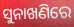
ସୁନାଖଣିରେ